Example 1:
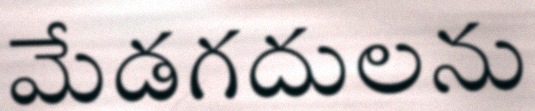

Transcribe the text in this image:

మేడగదులను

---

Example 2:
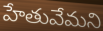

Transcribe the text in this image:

హేతువేమని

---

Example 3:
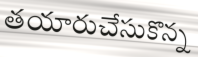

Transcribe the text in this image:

తయారుచేసుకొన్న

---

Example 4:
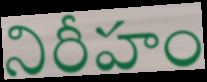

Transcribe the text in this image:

నిరీహం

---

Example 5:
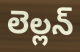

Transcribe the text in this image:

లెల్లన్